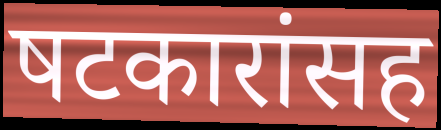
षटकारांसह